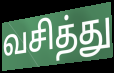
வசித்து